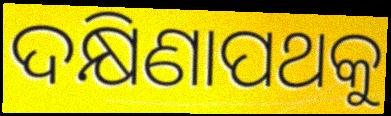
ଦକ୍ଷିଣାପଥକୁ